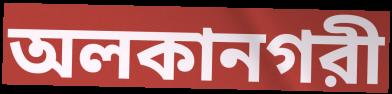
অলকানগরী